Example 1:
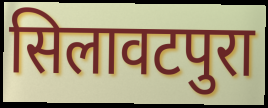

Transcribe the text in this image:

सिलावटपुरा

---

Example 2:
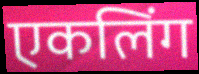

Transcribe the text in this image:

एकलिंग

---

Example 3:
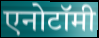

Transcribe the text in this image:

एनोटॉमी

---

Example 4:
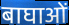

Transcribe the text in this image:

बाघाओं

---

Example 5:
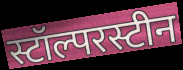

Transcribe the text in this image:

स्टॉल्परस्टीन